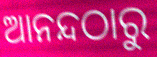
ଆନନ୍ଦଠାରୁ